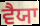
ਵੈਯਾ